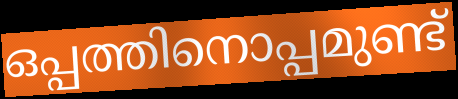
ഒപ്പത്തിനൊപ്പമുണ്ട്